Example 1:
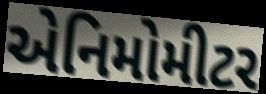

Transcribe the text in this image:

એનિમોમીટર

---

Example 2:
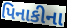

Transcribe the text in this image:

પિનાકીના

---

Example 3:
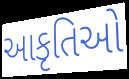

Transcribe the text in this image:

આકૃતિઓ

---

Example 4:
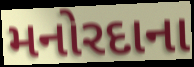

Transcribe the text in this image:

મનોરદાના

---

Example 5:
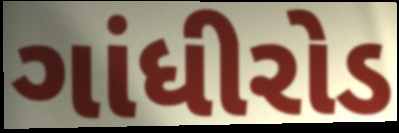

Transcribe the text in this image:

ગાંધીરોડ